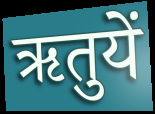
ऋतुयें